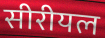
सीरीयल